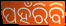
ପହଁରିବି